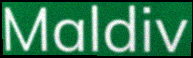
Maldiv